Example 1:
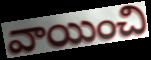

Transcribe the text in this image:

వాయించి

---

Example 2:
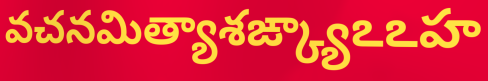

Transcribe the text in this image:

వచనమిత్యాశఙ్క్యాఽఽహ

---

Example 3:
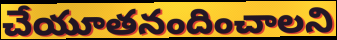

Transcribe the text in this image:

చేయూతనందించాలని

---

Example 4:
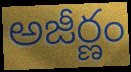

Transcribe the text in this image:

అజీర్ణం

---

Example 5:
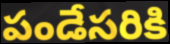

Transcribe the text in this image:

పండేసరికి